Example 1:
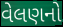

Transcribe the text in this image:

વેલણનો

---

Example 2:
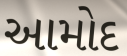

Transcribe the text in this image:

આમોદ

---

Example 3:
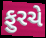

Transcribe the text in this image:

ફુરચે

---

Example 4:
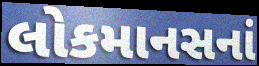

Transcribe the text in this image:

લોકમાનસનાં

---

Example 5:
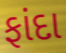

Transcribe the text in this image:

ફાંદા